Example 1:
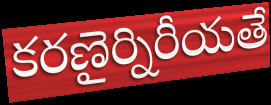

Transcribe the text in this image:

కరణైర్నిరీయతే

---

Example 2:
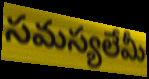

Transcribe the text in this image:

సమస్యలేమీ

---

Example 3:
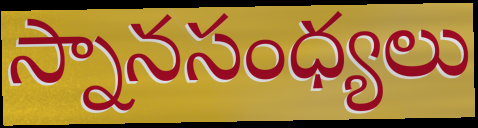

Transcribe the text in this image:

స్నానసంధ్యలు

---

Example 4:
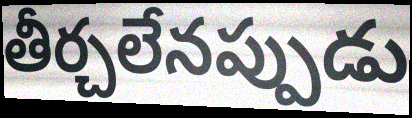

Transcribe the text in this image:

తీర్చలేనప్పుడు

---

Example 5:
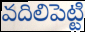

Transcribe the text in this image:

వదిలిపెట్టి